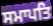
ਸਮਾਪਤਿ